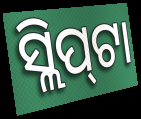
ସ୍ଲିପ୍‌ଟା